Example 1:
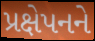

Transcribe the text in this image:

પ્રક્ષેપનને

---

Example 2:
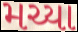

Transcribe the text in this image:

મચ્યા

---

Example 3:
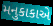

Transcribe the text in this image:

મનુકાકાએ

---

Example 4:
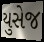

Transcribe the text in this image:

યુસેજ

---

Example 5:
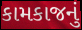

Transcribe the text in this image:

કામકાજનું